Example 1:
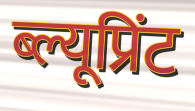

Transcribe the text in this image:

ब्ल्यूप्रिंट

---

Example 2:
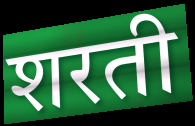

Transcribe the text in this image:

शरती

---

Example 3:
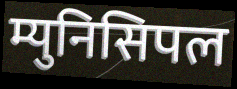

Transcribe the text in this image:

म्युनिसिपल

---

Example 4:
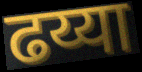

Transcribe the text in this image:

ढय्या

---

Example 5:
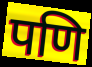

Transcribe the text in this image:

पणि